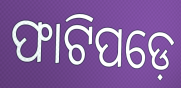
ଫାଟିପଡ଼େ